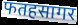
फतहसागर